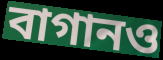
বাগানও